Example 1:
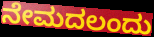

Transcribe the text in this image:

ನೇಮದಲಂದು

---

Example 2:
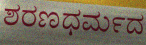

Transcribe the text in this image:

ಶರಣಧರ್ಮದ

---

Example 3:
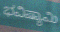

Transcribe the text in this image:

ಭವಿಷ್ಯಾಮಿ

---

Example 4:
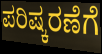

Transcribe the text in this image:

ಪರಿಷ್ಕರಣೆಗೆ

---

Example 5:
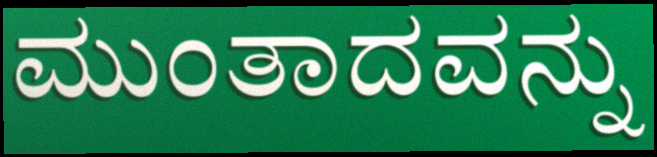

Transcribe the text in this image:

ಮುಂತಾದವನ್ನು